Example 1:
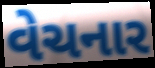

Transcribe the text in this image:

વેચનાર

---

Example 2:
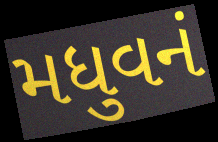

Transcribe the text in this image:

મધુવનં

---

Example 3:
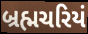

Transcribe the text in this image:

બ્રહ્મચરિયં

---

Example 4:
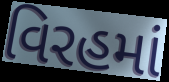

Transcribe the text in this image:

વિરહમાં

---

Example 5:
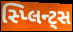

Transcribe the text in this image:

સ્પ્લિન્ટ્સ